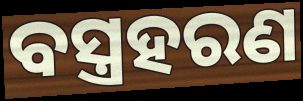
ବସ୍ତ୍ରହରଣ